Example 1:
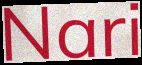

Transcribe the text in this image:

Nari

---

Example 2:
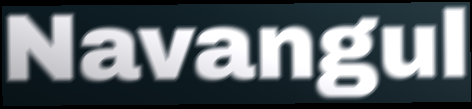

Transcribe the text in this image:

Navangul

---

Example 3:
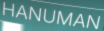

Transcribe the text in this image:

HANUMAN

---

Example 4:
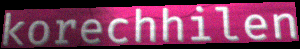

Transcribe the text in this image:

korechhilen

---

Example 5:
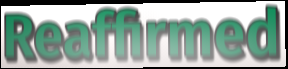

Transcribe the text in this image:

Reaffirmed